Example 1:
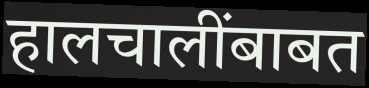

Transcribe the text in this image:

हालचालींबाबत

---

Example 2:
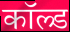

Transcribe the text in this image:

कॉल्ड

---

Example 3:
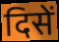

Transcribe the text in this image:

दिसें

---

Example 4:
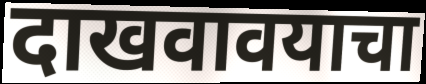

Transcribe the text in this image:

दाखवावयाचा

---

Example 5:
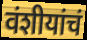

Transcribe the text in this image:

वंशीयांचं